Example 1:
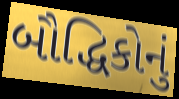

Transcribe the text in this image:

બૌદ્ધિકોનું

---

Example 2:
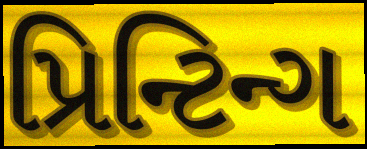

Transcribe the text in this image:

પ્રિન્ટિન્ગ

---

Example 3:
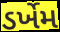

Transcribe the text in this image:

ડર્ખેમ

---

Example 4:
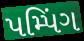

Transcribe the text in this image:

પમ્પિંગ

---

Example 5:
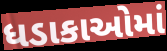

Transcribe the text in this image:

ધડાકાઓમાં